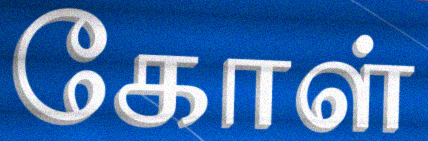
கோள்